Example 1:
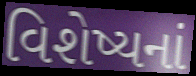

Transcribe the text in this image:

વિશેષ્યનાં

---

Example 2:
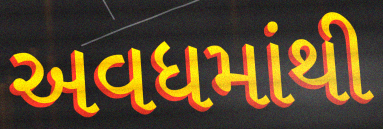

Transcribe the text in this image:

અવધમાંથી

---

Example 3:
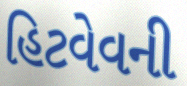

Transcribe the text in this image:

હિટવેવની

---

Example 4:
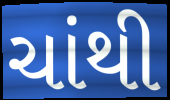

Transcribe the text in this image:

ચાંથી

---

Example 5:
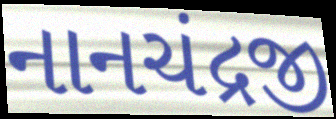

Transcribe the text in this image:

નાનચંદ્રજી